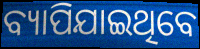
ବ୍ୟାପିଯାଇଥିବେ